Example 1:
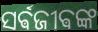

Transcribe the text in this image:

ସର୍ଵଜୀଵଙ୍କ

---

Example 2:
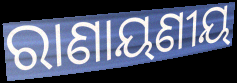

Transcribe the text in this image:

ରାଣାୟଣୀୟ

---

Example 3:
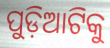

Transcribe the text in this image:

ପୁଡ଼ିଆଟିକୁ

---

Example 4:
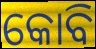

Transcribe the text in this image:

କୋବି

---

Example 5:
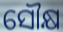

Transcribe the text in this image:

ସୌକ୍ଷ